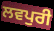
ਲਵਪੁਰੀ